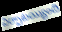
ఏర్పాటయ్యింది